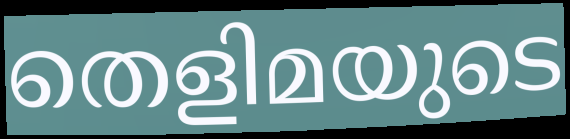
തെളിമയുടെ